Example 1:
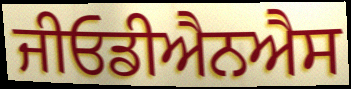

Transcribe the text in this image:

ਜੀਓਡੀਐਨਐਸ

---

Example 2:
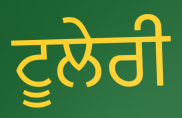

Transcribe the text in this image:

ਟੂਲੇਰੀ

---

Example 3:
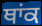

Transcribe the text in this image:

ਥਾਂਕ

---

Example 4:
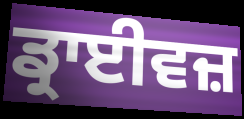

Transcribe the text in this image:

ਡ੍ਰਾਈਵਜ਼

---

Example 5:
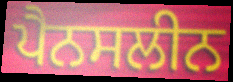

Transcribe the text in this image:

ਪੈਨਸਲੀਨ